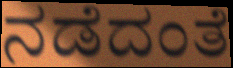
ನಡೆದಂತೆ